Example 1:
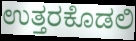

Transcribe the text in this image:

ಉತ್ತರಕೊಡಲಿ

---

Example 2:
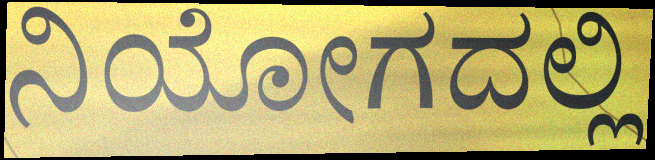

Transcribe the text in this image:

ನಿಯೋಗದಲ್ಲಿ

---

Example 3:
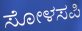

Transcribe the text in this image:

ಸೋಳಸಪಿ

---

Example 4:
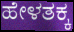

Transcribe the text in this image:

ಹೇಳತಕ್ಕ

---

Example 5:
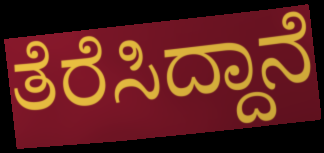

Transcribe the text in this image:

ತೆರೆಸಿದ್ದಾನೆ